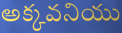
అక్కవనియు